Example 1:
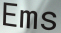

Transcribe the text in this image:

Ems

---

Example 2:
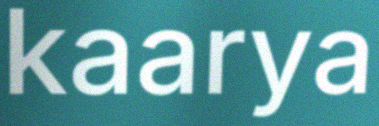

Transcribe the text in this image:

kaarya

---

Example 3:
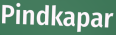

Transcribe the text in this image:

Pindkapar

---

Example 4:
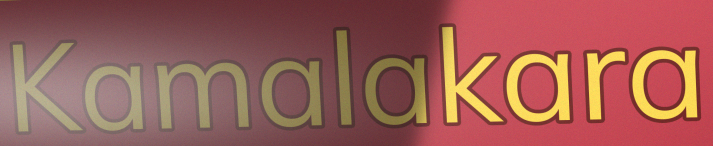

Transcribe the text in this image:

Kamalakara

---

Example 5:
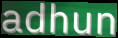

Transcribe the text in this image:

adhun